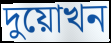
দুয়োখন